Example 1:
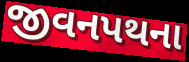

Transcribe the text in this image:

જીવનપથના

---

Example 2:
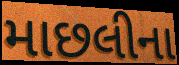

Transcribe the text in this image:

માછલીના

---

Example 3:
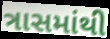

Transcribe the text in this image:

ત્રાસમાંથી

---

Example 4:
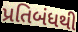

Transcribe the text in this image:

પ્રતિબંધથી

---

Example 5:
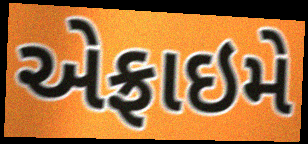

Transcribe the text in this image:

એફ્રાઇમે